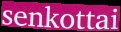
senkottai